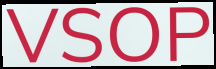
VSOP